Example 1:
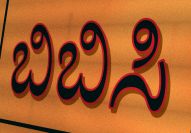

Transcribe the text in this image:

ಬಿಬಿಸಿ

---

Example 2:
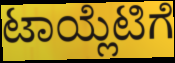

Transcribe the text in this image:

ಟಾಯ್ಲೆಟಿಗೆ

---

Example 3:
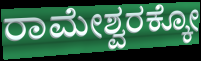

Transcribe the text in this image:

ರಾಮೇಶ್ವರಕ್ಕೋ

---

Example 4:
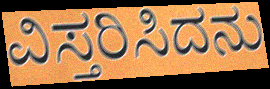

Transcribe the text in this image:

ವಿಸ್ತರಿಸಿದನು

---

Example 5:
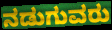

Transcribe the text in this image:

ನಡುಗುವರು